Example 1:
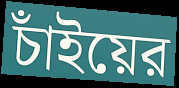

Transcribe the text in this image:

চাঁইয়ের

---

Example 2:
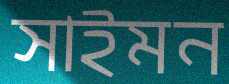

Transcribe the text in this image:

সাইমন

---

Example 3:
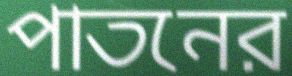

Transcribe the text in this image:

পাতনের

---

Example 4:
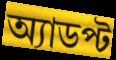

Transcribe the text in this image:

অ্যাডপ্ট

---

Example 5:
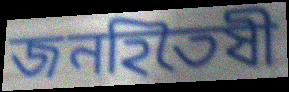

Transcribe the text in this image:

জনহিতৈষী